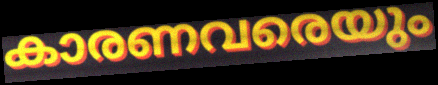
കാരണവരെയും